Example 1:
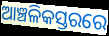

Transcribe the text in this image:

ଆଞ୍ଚଳିକସ୍ତରରେ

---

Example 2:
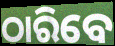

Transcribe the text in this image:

ଠାରିବେ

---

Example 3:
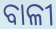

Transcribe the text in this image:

ବାଳୀ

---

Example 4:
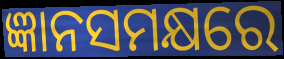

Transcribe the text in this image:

ଜ୍ଞାନସମକ୍ଷରେ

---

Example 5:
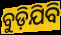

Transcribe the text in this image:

ବୁଡ଼ିଯିବି